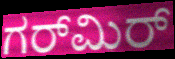
ಗರ್‌ಮಿರ್